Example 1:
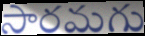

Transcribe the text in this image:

సారమగు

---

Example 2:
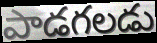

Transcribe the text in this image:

పాడగలడు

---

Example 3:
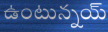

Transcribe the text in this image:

ఉంటున్నయ్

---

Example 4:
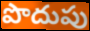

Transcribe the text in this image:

పొదుపు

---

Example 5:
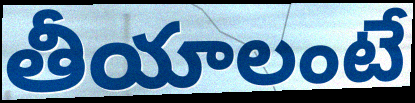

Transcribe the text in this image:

తీయాలంటే